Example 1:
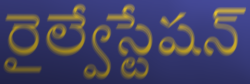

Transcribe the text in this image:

రైల్వేస్టేషన్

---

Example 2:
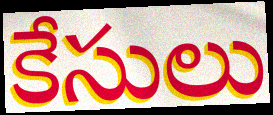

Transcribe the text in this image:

కేసులు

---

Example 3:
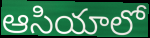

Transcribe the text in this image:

ఆసియాలో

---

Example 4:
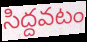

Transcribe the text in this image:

సిద్దవటం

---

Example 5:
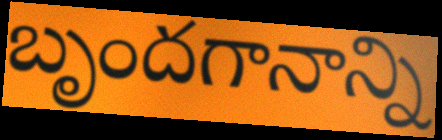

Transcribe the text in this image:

బృందగానాన్ని